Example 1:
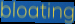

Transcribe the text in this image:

bloating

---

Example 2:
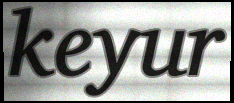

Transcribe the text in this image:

keyur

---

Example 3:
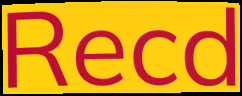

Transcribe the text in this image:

Recd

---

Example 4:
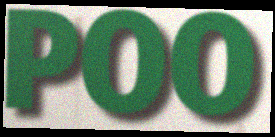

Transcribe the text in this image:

POO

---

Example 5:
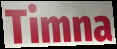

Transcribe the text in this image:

Timna